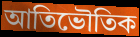
আতিভৌতিক